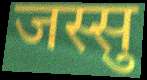
जस्सु